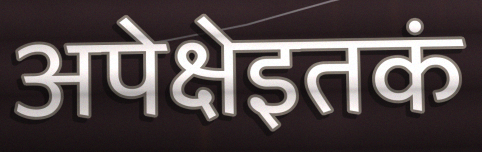
अपेक्षेइतकं